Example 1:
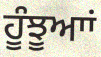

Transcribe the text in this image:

ਹੂੰਝੂਆਾਂ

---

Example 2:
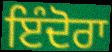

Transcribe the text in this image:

ਇੰਦੋਰਾ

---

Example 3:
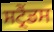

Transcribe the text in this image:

ਸਟ੍ਰੈਂਡਸ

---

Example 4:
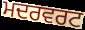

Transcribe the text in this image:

ਮਦਰਵਰਟ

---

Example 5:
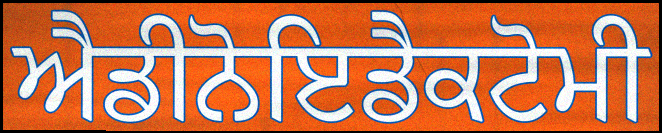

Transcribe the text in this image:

ਐਡੀਨੋਇਡੈਕਟੋਮੀ